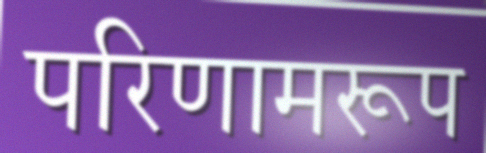
परिणामरूप